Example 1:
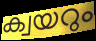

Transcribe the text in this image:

ക്വയറും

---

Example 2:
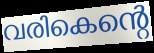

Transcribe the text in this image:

വരികെന്റെ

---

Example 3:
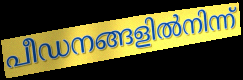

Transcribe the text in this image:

പീഡനങ്ങളിൽനിന്ന്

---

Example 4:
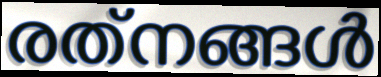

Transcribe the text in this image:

രത്‌നങ്ങൾ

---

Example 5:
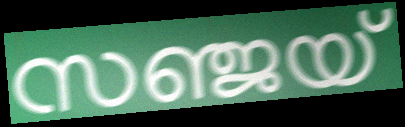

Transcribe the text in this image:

സഞ്ജയ്